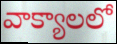
వాక్యాలలో